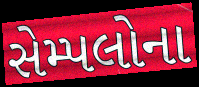
સેમ્પલોના